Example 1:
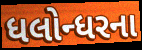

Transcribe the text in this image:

ધલોન્ધરના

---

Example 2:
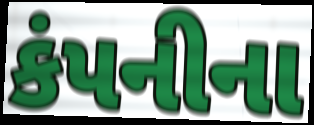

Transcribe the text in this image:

કંપનીના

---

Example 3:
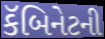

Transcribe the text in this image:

કૅબિનેટની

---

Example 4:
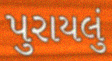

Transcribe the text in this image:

પુરાયલું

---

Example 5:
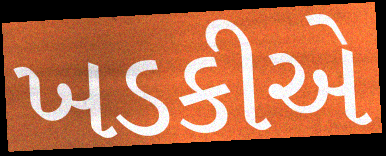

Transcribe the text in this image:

ખડકીએ